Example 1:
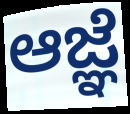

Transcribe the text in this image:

ಆಜ್ಞೆ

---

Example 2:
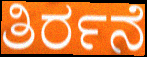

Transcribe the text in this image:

ತಿರ್ರನೆ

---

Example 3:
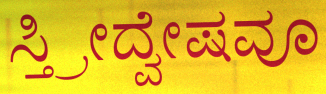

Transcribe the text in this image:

ಸ್ತ್ರೀದ್ವೇಷವೂ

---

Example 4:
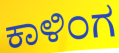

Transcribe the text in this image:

ಕಾಳಿಂಗ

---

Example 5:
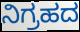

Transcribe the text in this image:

ನಿಗ್ರಹದ